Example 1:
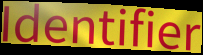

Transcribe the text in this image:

Identifier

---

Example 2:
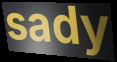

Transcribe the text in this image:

sady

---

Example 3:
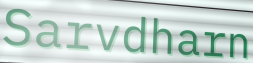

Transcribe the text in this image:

Sarvdharn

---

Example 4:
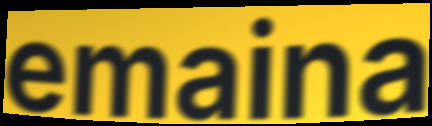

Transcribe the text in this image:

emaina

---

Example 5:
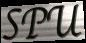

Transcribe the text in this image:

SPU